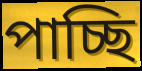
পাচ্ছি